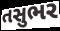
તસુભર